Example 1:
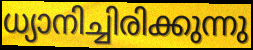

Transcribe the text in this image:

ധ്യാനിച്ചിരിക്കുന്നു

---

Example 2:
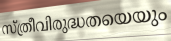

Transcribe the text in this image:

സ്ത്രീവിരുദ്ധതയെയും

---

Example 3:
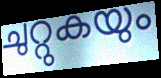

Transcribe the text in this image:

ചുറ്റുകയും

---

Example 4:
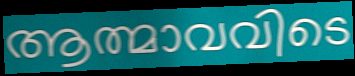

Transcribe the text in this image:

ആത്മാവവിടെ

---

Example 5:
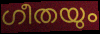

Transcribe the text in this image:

ഗീതയും